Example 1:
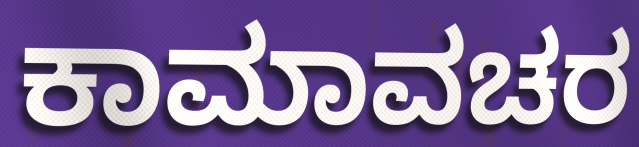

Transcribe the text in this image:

ಕಾಮಾವಚರ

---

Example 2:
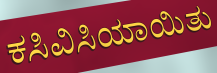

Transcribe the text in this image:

ಕಸಿವಿಸಿಯಾಯಿತು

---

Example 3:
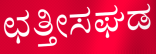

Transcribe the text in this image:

ಛತ್ತೀಸಘಡ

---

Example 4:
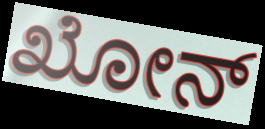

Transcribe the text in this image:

ಖೋನ್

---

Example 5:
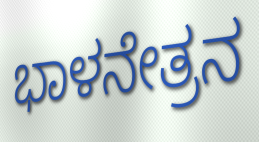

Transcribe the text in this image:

ಭಾಳನೇತ್ರನ